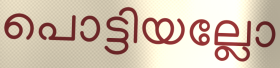
പൊട്ടിയല്ലോ